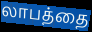
லாபத்தை